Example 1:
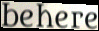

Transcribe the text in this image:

behere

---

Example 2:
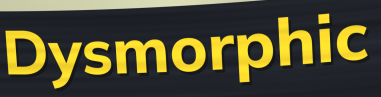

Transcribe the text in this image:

Dysmorphic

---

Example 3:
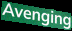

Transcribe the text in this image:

Avenging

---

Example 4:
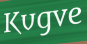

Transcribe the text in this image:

Kugve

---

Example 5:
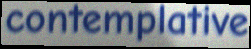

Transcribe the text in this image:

contemplative